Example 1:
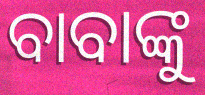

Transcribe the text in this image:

ବାବାଙ୍କୁ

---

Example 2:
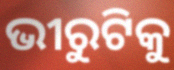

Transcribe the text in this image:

ଭୀରୁଟିକୁ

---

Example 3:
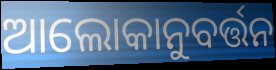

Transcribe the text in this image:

ଆଲୋକାନୁବର୍ତ୍ତନ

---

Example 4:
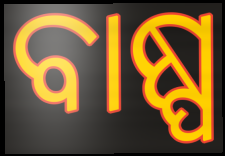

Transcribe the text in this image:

ବାଷ୍ପ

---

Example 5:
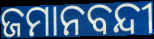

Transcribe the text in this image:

ଜମାନବନ୍ଦୀ